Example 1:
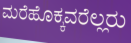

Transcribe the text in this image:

ಮರೆಹೊಕ್ಕವರೆಲ್ಲರು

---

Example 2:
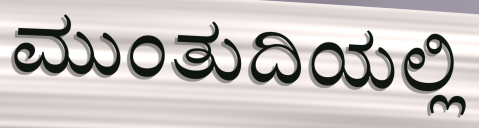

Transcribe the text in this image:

ಮುಂತುದಿಯಲ್ಲಿ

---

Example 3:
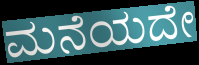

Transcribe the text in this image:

ಮನೆಯದೇ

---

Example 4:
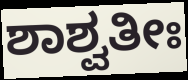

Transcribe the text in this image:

ಶಾಶ್ವತೀಃ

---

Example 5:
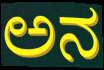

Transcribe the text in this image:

ಅನ